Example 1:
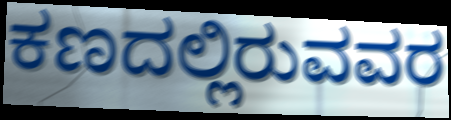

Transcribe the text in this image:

ಕಣದಲ್ಲಿರುವವರ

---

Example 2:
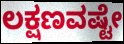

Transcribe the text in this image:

ಲಕ್ಷಣವಷ್ಟೇ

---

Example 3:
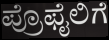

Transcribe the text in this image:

ಪ್ರೊಫೈಲಿಗೆ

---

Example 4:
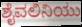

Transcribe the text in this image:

ಶೈವಲಿನಿಯು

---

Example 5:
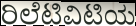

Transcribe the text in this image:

ರಿಲೆಟಿವಿಟಿಯ